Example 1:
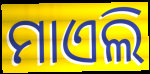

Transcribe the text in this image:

ମାଏଲି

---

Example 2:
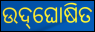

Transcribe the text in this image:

ଉଦ୍‌ଘୋଷିତ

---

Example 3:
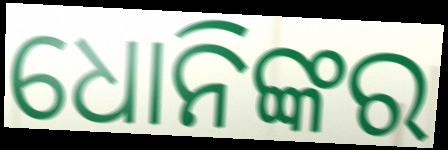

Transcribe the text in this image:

ଧୋନିଙ୍କର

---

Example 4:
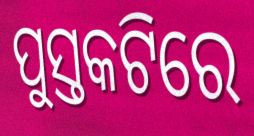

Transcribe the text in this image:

ପୁସ୍ତକଟିରେ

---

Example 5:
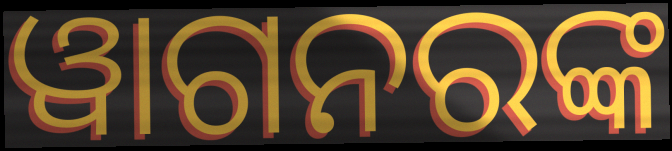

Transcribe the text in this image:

ୱାଗନରଙ୍କ